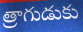
త్రాగుడుకు